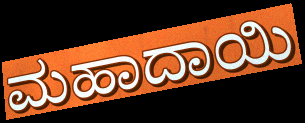
ಮಹಾದಾಯಿ